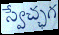
స్వేచ్ఛగ